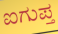
ಐಗುಪ್ತ